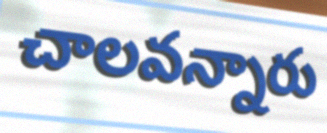
చాలవన్నారు